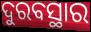
ଦୁରବସ୍ଥାର